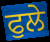
ਫੁਲੇ